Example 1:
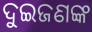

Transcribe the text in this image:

ଦୁଇଜଣଙ୍କ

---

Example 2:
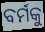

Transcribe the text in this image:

ବର୍ମକୁ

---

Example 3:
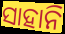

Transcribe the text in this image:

ସାହାନି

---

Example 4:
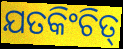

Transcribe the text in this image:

ଯତକିଂଚିତ୍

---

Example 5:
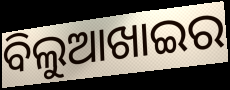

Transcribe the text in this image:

ବିଲୁଆଖାଇର